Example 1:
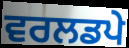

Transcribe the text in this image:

ਵਰਲਡਪੇ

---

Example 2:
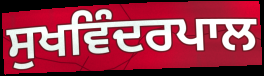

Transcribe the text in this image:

ਸੁਖਵਿੰਦਰਪਾਲ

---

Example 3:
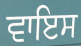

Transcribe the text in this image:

ਵਾਇਸ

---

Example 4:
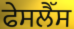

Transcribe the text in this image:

ਫੇਸਲੈੱਸ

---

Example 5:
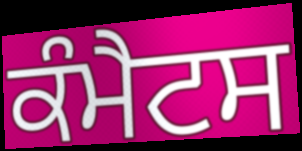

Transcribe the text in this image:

ਕੰਮੈਟਸ